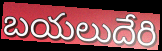
బయలుదేరి